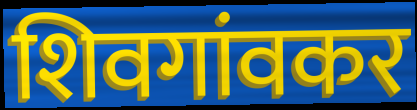
शिवगांवकर